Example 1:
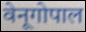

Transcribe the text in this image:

वेनूगोपाल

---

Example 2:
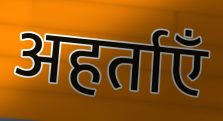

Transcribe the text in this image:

अहर्ताएँ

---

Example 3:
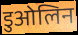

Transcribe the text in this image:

डुओलिन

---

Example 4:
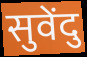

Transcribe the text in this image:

सुवेंदु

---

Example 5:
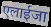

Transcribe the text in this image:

एलाईजा